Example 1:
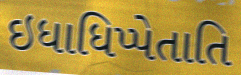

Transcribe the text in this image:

ઇધાધિપ્પેતાતિ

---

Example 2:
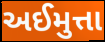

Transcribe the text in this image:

અઈમુત્તા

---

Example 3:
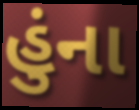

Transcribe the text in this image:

હુંના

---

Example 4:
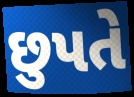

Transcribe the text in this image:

છુપતે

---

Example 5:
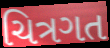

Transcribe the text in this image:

ચિત્રગત